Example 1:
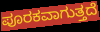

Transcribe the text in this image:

ಪೂರಕವಾಗುತ್ತದೆ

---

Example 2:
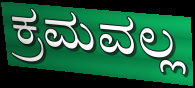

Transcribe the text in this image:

ಕ್ರಮವಲ್ಲ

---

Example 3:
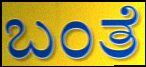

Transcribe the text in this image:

ಬಂತೆ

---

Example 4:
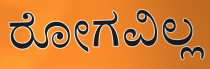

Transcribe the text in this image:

ರೋಗವಿಲ್ಲ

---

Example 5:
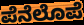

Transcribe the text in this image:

ಪೆನೆಲೊಪೆ